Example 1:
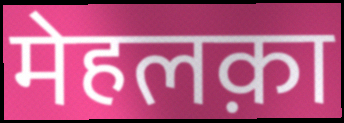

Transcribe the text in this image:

मेहलक़ा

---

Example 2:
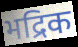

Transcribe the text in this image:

भद्रिक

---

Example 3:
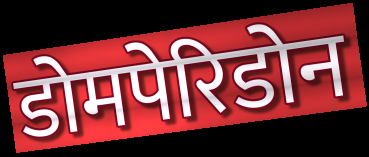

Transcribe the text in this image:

डोमपेरिडोन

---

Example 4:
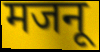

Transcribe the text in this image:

मजनू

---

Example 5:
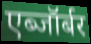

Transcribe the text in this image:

एब्जॉर्बर